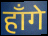
हाँगे